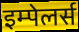
इम्पेलर्स